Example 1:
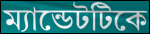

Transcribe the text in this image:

ম্যান্ডেটটিকে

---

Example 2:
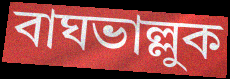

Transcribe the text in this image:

বাঘভাল্লুক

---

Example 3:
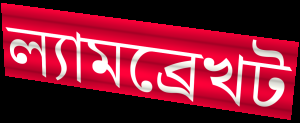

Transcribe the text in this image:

ল্যামব্রেখট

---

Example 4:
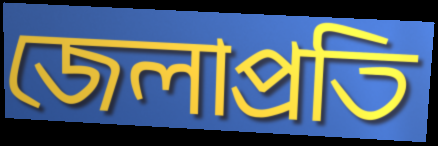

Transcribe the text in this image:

জেলাপ্রতি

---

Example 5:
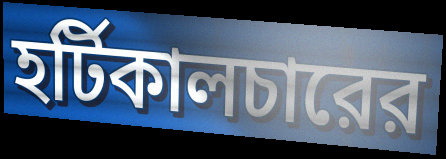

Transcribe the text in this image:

হর্টিকালচারের